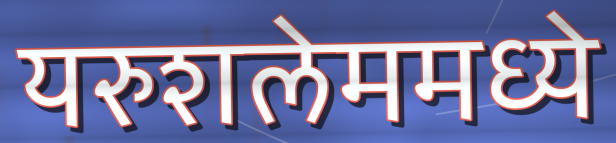
यरुशलेममध्ये